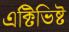
এক্টিভিষ্ট